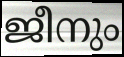
ജീനും